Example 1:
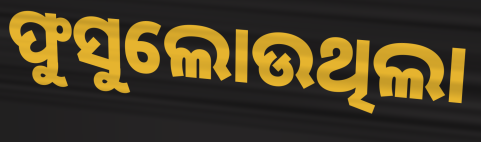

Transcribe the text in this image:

ଫୁସୁଲୋଉଥିଲା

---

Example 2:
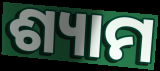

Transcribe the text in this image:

ଶ୍ୟାମ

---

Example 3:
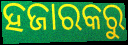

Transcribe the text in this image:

ହଜାରକରୁ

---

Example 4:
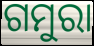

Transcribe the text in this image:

ଗମୁରା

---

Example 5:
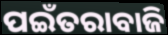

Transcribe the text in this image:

ପଇଁତରାବାଜି